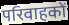
परिवाहकों